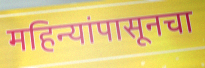
महिन्यांपासूनचा